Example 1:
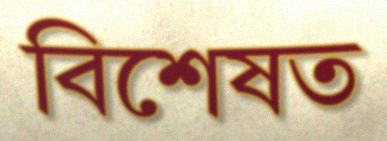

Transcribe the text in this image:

বিশেষত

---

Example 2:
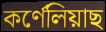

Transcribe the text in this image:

কৰ্ণেলিয়াছ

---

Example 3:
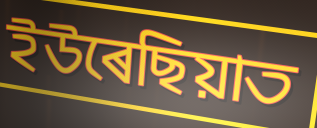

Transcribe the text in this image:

ইউৰেছিয়াত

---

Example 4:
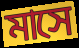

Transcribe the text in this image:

মাসে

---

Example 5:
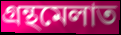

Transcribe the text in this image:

গ্ৰন্থমেলাত